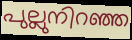
പുല്ലുനിറഞ്ഞ